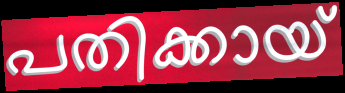
പതിക്കായ്